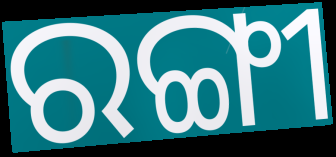
ରଙ୍ଗୀ